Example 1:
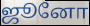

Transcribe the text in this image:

ஜூனோ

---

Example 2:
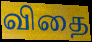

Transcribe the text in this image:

விதை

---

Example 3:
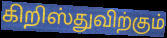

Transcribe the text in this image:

கிறிஸ்துவிற்கும்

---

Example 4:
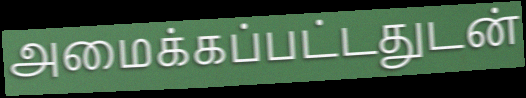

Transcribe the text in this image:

அமைக்கப்பட்டதுடன்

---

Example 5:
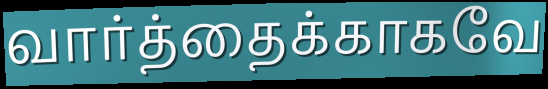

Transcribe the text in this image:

வார்த்தைக்காகவே